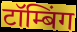
टॉम्बिंग